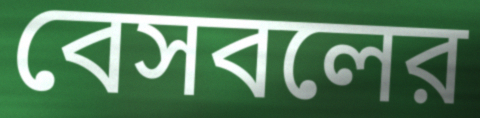
বেসবলের